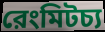
রেংমিটচ্য